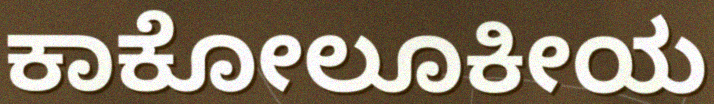
ಕಾಕೋಲೂಕೀಯ